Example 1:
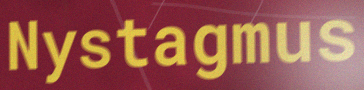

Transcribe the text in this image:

Nystagmus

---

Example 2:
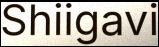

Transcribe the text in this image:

Shiigavi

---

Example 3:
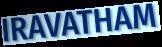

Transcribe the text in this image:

IRAVATHAM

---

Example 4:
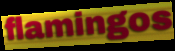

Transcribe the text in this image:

flamingos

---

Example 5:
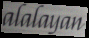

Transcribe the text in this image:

alalayan